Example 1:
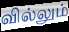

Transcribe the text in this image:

வில்லும்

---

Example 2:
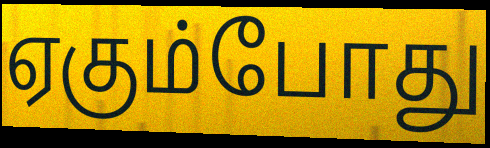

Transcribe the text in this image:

ஏகும்போது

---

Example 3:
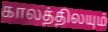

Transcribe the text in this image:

காலத்திலயும்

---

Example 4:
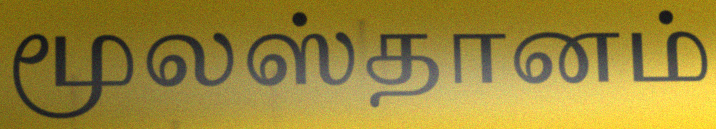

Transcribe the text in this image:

மூலஸ்தானம்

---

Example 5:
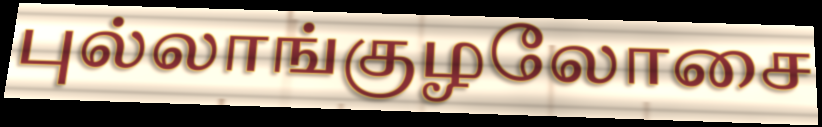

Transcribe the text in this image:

புல்லாங்குழலோசை